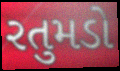
રતુમડો